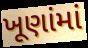
ખૂણાંમાં